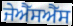
ਜੇਐੱਸਐੱਸ